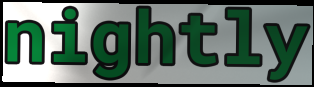
nightly